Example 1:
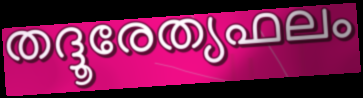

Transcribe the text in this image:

തദ്ദൂരേത്യഫലം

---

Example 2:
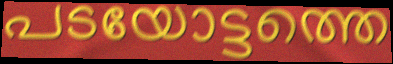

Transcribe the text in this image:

പടയോട്ടത്തെ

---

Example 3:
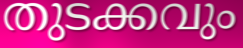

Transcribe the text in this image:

തുടക്കവും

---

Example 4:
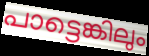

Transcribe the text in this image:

പാട്ടെങ്കിലും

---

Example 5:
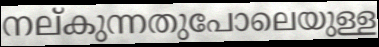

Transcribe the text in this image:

നല്കുന്നതുപോലെയുള്ള